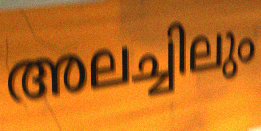
അലച്ചിലും